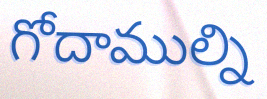
గోదాముల్ని